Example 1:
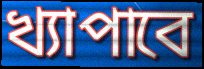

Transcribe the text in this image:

খ্যাপাবে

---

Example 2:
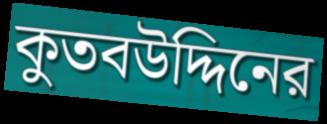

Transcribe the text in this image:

কুতবউদ্দিনের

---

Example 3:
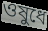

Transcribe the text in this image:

ওষুধে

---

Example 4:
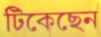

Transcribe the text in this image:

টিকেছেন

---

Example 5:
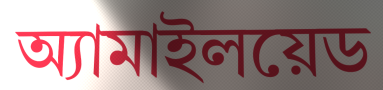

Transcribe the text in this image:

অ্যামাইলয়েড